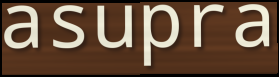
asupra